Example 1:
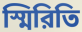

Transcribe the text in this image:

স্মিরিতি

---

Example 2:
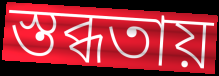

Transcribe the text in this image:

স্তব্ধতায়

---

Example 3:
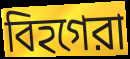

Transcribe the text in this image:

বিহগেরা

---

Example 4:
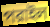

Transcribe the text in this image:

পরাইল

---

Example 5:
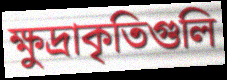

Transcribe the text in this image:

ক্ষুদ্রাকৃতিগুলি